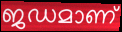
ജഡമാണ്